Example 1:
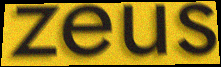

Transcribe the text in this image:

zeus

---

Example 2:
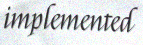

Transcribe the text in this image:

implemented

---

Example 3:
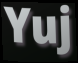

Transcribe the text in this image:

Yuj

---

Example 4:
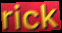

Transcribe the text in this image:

rick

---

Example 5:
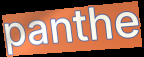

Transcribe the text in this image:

panthe